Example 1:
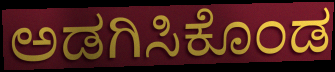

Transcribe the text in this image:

ಅಡಗಿಸಿಕೊಂಡ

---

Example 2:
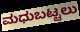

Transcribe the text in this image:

ಮಧುಬಟ್ಟಲು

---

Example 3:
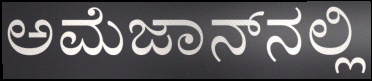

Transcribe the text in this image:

ಅಮೆಜಾನ್‌ನಲ್ಲಿ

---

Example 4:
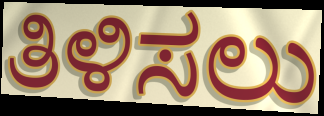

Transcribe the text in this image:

ತಿಳಿಸಲು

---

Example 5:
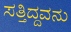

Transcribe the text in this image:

ಸತ್ತಿದ್ದವನು